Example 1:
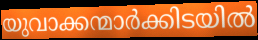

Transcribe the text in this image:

യുവാക്കന്മാർക്കിടയിൽ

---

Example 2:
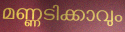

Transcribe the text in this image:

മണ്ണടിക്കാവും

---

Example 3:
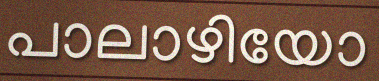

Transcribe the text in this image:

പാലാഴിയോ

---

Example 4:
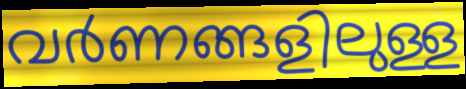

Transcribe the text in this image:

വർണങ്ങളിലുള്ള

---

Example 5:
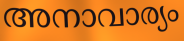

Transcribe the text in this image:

അനാവാര്യം